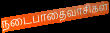
நடைபாதைவாசிகள்